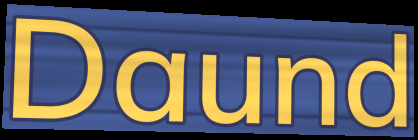
Daund